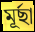
মূর্ছা